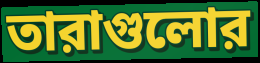
তারাগুলোর